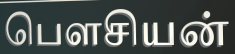
பௌசியன்